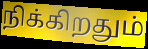
நிக்கிறதும்